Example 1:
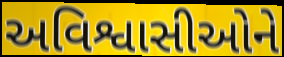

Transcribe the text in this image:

અવિશ્વાસીઓને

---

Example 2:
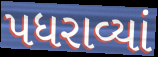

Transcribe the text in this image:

પધરાવ્યાં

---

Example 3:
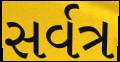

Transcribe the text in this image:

સર્વત્ર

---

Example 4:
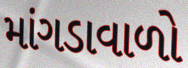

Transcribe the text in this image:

માંગડાવાળો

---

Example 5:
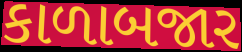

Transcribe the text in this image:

કાળાબજાર